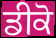
ਡੀਕੋ